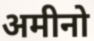
अमीनो